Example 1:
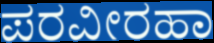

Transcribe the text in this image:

ಪರವೀರಹಾ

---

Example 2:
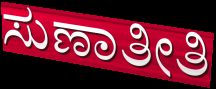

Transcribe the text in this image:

ಸುಣಾತೀತಿ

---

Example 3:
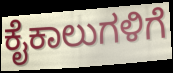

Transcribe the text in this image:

ಕೈಕಾಲುಗಳಿಗೆ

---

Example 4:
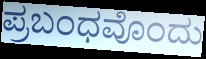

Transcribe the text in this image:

ಪ್ರಬಂಧವೊಂದು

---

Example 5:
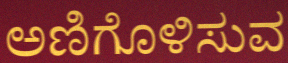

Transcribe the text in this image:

ಅಣಿಗೊಳಿಸುವ